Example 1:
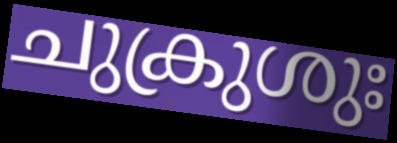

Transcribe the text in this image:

ചുക്രുശുഃ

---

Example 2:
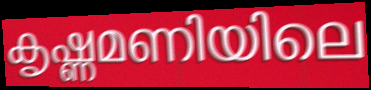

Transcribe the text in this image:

കൃഷ്ണമണിയിലെ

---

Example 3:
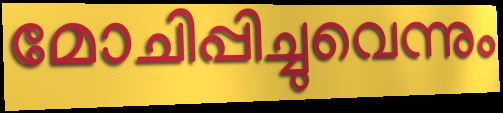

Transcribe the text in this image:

മോചിപ്പിച്ചുവെന്നും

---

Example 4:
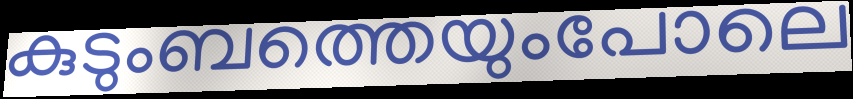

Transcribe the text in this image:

കുടുംബത്തെയുംപോലെ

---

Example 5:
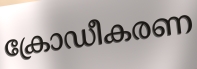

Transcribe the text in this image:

ക്രോഡീകരണ